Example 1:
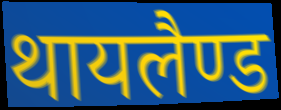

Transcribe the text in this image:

थायलैण्ड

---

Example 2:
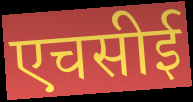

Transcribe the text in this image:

एचसीई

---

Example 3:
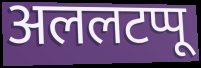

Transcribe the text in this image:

अललटप्पू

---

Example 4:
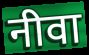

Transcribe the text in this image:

नीवा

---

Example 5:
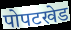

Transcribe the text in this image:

पोपटखेड